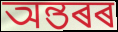
অন্তৰৰ